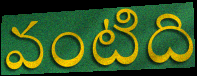
వంటిది